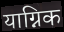
याग्निक